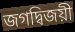
জগদ্বিজয়ী